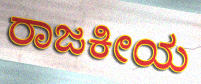
ರಾಜಕೀಯ